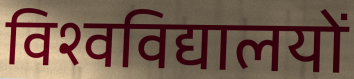
विश्वविद्यालयों